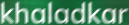
khaladkar